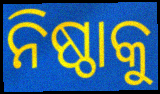
ନିଷ୍ଠାକୁ